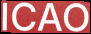
ICAO